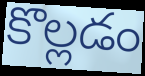
కొల్లడం